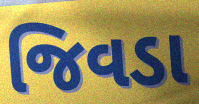
જિવડા